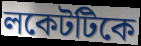
লকেটটিকে